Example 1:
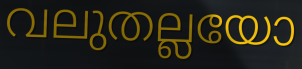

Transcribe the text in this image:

വലുതല്ലയോ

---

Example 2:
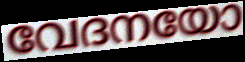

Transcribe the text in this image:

വേദനയോ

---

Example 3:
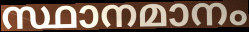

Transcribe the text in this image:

സ്ഥാനമാനം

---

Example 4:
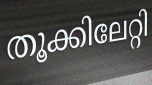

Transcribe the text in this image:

തൂക്കിലേറ്റി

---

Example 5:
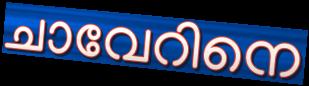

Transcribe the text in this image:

ചാവേറിനെ